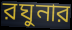
রঘুনার